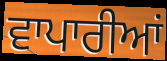
ਵਾਪਾਰੀਆਂ